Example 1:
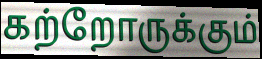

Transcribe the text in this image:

கற்றோருக்கும்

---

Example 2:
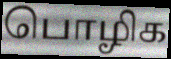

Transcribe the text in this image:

பொழிக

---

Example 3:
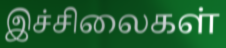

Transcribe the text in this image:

இச்சிலைகள்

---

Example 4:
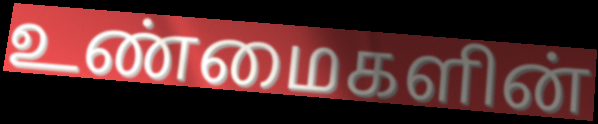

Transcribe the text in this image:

உண்மைகளின்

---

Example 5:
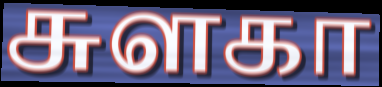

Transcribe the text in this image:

சுளகா